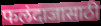
फलंदाजासाठी